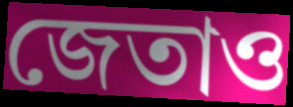
জেতাও